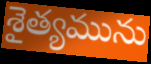
శైత్యమును